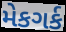
મેકગર્ક